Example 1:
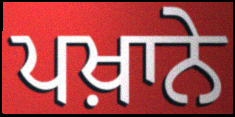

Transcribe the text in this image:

ਪਖ਼ਾਨੇ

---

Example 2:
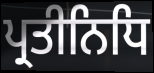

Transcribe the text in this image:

ਪ੍ਰਤੀਨਿਧਿ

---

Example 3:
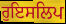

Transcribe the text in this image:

ਰੁਇਸਲਿਪ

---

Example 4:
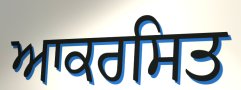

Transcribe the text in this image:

ਆਕਰਸਿਤ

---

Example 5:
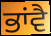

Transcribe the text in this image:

ਭਾਂਵੈ